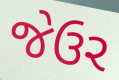
જેઉર